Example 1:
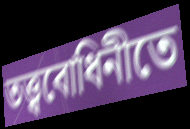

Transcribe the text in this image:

তত্ত্ববোধিনীতে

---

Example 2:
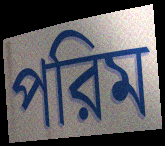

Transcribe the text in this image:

পরিম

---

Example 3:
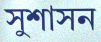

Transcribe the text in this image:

সুশাসন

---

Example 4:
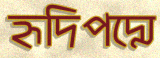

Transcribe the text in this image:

হৃদিপদ্মে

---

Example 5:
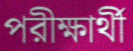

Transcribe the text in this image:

পরীক্ষার্থী